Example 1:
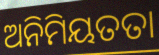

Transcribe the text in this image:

ଅନିମିୟତତା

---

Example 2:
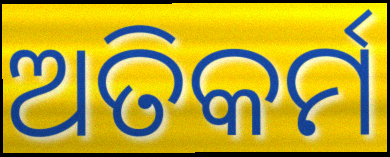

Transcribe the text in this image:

ଅତିକର୍ମ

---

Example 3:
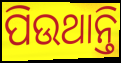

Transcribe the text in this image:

ପିଉଥାନ୍ତି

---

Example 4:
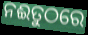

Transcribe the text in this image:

ନଈତୁଠରେ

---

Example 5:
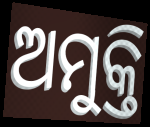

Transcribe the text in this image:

ଅମୁକ୍ତି